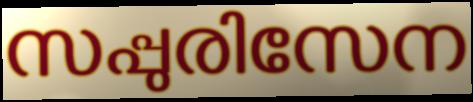
സപ്പുരിസേന